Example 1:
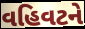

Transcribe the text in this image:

વહિવટને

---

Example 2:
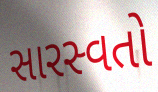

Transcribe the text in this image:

સારસ્વતો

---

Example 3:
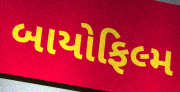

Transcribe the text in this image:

બાયોફિલ્મ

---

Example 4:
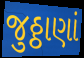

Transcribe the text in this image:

જુઠ્ઠાણાં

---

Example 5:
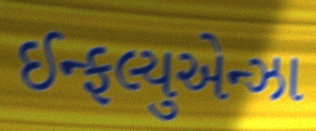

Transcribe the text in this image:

ઈન્ફલ્યુએન્ઝા